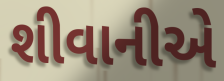
શીવાનીએ